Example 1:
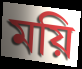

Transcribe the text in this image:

ময়ি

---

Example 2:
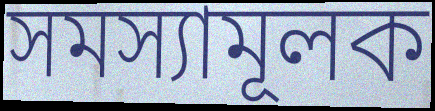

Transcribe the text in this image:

সমস্যামূলক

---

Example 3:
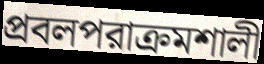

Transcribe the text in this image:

প্রবলপরাক্রমশালী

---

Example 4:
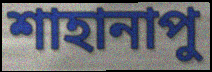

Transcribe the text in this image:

শাহানাপু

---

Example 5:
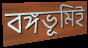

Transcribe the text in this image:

বঙ্গভূমিই